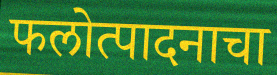
फलोत्पादनाचा